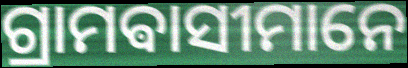
ଗ୍ରାମଵାସୀମାନେ